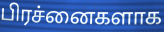
பிரச்னைகளாக